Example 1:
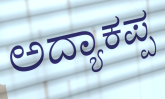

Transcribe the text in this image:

ಅದ್ಯಾಕಪ್ಪ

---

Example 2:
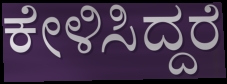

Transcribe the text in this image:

ಕೇಳಿಸಿದ್ದರೆ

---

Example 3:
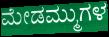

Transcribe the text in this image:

ಮೇಡಮ್ಮುಗಳ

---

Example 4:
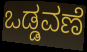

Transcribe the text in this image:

ಒಡ್ಡವಣೆ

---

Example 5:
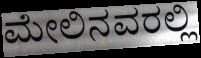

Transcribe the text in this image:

ಮೇಲಿನವರಲ್ಲಿ